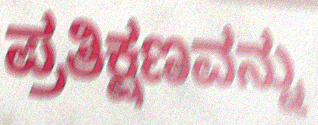
ಪ್ರತಿಕ್ಷಣವನ್ನು